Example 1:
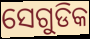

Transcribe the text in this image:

ସେଗୁଡିକ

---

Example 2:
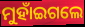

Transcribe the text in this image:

ମୁହାଁଇଗଲେ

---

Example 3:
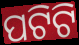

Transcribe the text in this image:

ପଟିଟି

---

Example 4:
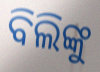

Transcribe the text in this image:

ବିଲିଙ୍କୁ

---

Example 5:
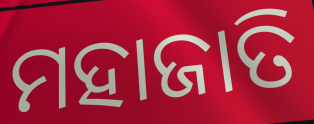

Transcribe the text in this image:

ମହାଜାତି